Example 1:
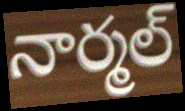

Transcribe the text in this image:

నార్మల్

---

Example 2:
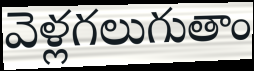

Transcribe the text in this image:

వెళ్లగలుగుతాం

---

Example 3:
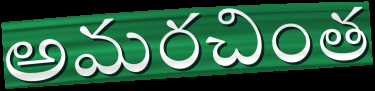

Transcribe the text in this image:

అమరచింత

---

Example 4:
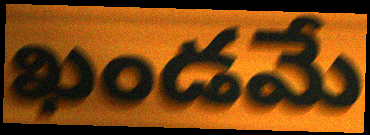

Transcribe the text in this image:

ఖండమే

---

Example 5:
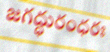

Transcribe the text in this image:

జగద్ధురంధరః